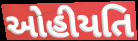
ઓહીયતિ